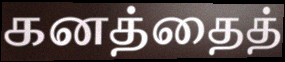
கனத்தைத்